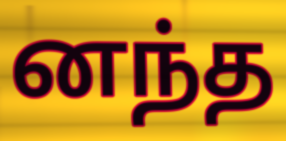
னந்த